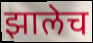
झालेच